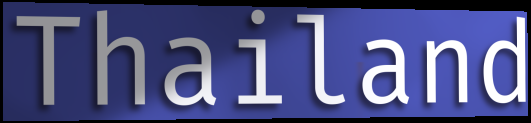
Thailand